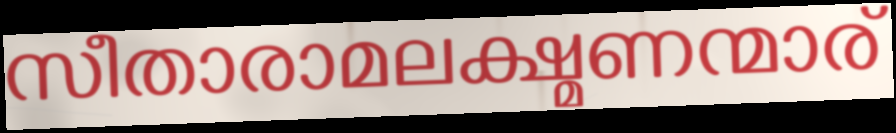
സീതാരാമലക്ഷ്മണന്മാര്